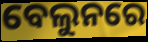
ବେଲୁନରେ